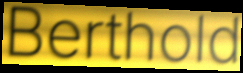
Berthold